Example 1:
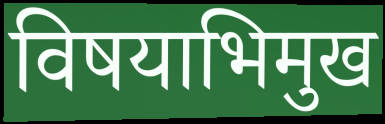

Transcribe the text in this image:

विषयाभिमुख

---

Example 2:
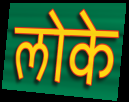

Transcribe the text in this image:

लोके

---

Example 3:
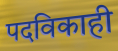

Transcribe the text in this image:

पदविकाही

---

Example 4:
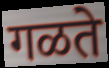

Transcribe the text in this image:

गळते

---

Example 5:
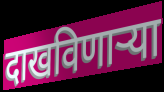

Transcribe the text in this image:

दाखविणाऱ्या